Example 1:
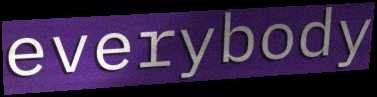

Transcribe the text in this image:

everybody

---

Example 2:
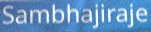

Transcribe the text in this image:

Sambhajiraje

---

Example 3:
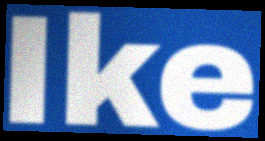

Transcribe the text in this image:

Ike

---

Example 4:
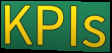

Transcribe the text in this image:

KPIs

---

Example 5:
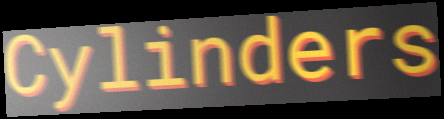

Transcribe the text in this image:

Cylinders